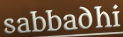
sabbadhi